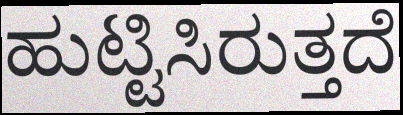
ಹುಟ್ಟಿಸಿರುತ್ತದೆ